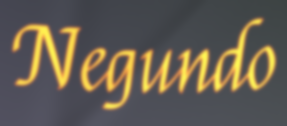
Negundo